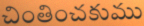
చింతించకుము